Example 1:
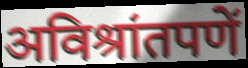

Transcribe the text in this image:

अविश्रांतपणें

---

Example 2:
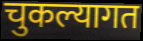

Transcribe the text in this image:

चुकल्यागत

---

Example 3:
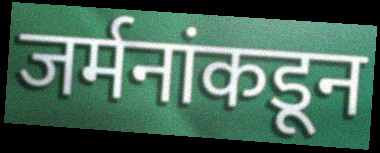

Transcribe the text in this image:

जर्मनांकडून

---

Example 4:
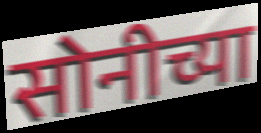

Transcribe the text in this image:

सोनीच्या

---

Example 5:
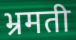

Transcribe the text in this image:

भ्रमती